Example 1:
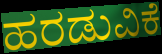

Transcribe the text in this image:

ಹರಡುವಿಕೆ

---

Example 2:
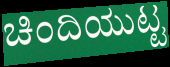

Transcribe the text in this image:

ಚಿಂದಿಯುಟ್ಟ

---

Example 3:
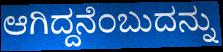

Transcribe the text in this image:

ಆಗಿದ್ದನೆಂಬುದನ್ನು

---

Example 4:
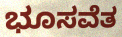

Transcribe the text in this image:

ಭೂಸವೆತ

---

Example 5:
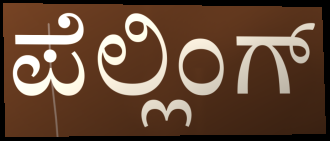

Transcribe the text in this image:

ಪೆಲ್ಲಿಂಗ್